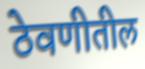
ठेवणीतील